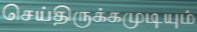
செய்திருக்கமுடியும்